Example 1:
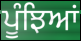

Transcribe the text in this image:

ਪੂੰਝਿਆਂ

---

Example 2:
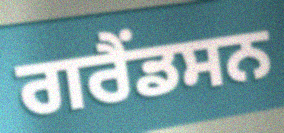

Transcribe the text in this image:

ਗਰੈਂਡਸਨ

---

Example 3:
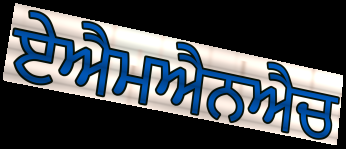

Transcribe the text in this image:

ਏਐਮਐਨਐਚ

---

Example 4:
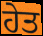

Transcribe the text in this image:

ਹੇਤ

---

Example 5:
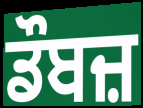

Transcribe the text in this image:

ਡੌਬਜ਼